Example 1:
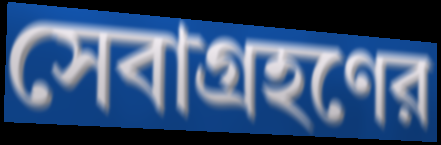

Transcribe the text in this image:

সেবাগ্রহণের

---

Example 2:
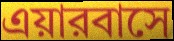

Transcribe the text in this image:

এয়ারবাসে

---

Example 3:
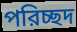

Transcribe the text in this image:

পরিচ্ছদ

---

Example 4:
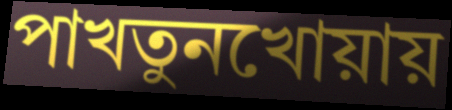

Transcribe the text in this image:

পাখতুনখোয়ায়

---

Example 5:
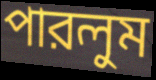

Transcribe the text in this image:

পারলুম